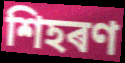
শিহৰণ